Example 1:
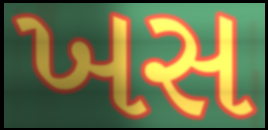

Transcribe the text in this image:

ખસ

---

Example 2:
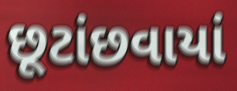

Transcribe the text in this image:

છૂટાંછવાયાં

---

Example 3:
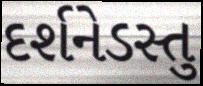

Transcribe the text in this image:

દર્શનેડસ્તુ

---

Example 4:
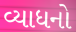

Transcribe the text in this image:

વ્યાધનો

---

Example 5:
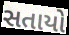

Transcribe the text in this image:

સતાયો